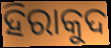
ହିରାକୁଦ